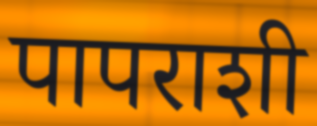
पापराशी